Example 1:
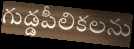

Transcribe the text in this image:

గుడ్డపీలికలను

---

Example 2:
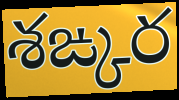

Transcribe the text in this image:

శఙ్కర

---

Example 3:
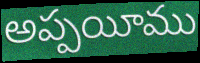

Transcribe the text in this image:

అప్పయీము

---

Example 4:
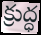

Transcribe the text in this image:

క్రుద్ధ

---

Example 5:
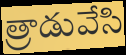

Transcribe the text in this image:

త్రాడువేసి